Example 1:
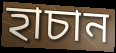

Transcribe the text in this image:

হাচান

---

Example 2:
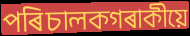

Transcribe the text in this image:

পৰিচালকগৰাকীয়ে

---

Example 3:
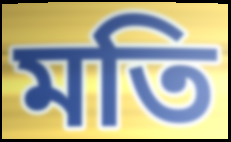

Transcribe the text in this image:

মতি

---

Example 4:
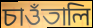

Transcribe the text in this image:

চাওঁতালি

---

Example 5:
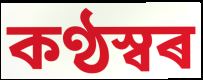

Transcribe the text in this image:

কণ্ঠস্বৰ